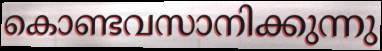
കൊണ്ടവസാനിക്കുന്നു